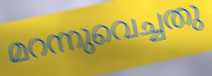
മറന്നുവെച്ചതു